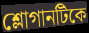
শ্লোগানটিকে